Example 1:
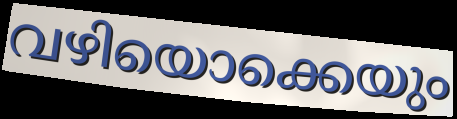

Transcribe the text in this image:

വഴിയൊക്കെയും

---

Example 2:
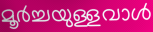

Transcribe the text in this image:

മൂർച്ചയുള്ളവാൾ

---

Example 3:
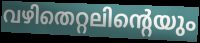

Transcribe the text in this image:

വഴിതെറ്റലിന്റെയും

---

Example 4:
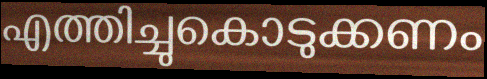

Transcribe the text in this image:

എത്തിച്ചുകൊടുക്കണം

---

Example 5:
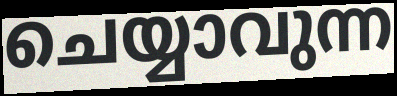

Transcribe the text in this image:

ചെയ്യാവുന്ന